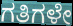
ಗತಿಗಳೇ